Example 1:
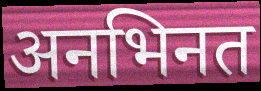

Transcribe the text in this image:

अनभिनत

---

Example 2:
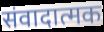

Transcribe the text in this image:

संवादात्मक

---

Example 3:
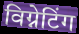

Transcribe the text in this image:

विग्नेटिंग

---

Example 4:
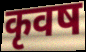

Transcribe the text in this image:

कृवष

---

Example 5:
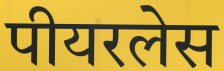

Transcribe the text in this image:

पीयरलेस